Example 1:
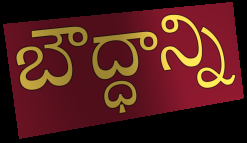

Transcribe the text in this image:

బౌద్ధాన్ని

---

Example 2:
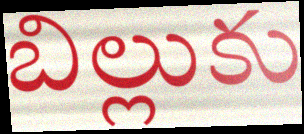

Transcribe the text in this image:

బిల్లుకు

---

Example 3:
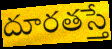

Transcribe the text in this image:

దూరతస్తే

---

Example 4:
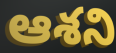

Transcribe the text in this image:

ఆశని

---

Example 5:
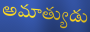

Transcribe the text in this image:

అమాత్యుడు